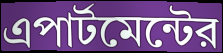
এপার্টমেন্টের